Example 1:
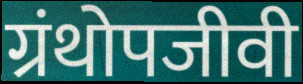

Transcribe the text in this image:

ग्रंथोपजीवी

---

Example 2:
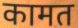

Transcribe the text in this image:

कामत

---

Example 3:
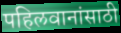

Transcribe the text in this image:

पहिलवानांसाठी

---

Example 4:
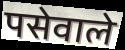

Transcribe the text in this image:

पसेवाले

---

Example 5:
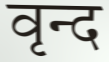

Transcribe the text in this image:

वृन्द